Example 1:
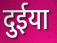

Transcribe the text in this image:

दुईया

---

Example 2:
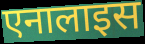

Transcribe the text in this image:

एनालाइस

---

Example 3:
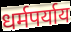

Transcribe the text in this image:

धर्मपर्याय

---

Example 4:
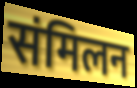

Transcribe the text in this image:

संमिलन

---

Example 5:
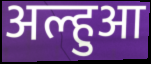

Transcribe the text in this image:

अल्हुआ